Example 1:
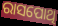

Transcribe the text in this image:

ରାସପୋଥି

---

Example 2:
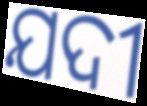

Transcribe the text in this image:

ଯଦୀ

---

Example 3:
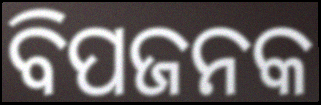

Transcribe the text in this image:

ବିପଜନକ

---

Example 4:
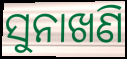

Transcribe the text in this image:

ସୁନାଖଣି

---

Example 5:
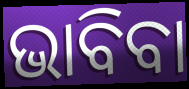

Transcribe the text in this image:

ଭାବିବା